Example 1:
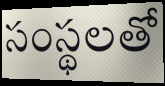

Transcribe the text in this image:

సంస్థలతో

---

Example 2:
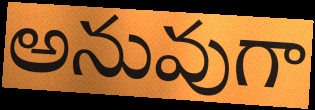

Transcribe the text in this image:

అనువుగా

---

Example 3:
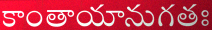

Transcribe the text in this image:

కాంతాయానుగతః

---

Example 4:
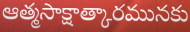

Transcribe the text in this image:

ఆత్మసాక్షాత్కారమునకు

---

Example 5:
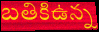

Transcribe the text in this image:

బతికిఉన్న